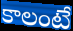
కాలంటే